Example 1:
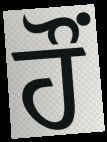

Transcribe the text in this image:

ਹੌਂ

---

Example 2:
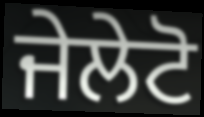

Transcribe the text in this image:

ਜੇਲੇਟੋ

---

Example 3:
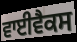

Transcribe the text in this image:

ਵਾਈਵੈਕਸ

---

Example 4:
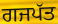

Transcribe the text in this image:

ਗਜਪੱਤ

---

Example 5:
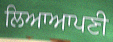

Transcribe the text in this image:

ਲਿਆਆਪਣੀ